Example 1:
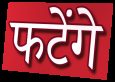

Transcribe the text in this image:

फटेंगे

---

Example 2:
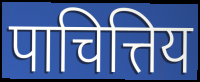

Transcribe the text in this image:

पाचित्तिय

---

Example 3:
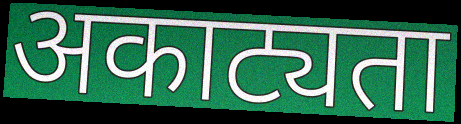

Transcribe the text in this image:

अकाट्यता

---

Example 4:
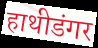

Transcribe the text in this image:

हाथीडंगर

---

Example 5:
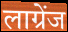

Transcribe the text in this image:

लाग्रेंज